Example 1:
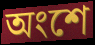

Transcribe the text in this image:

অংশে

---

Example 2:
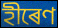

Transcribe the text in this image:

হীৰেণ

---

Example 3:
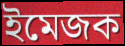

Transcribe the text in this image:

ইমেজক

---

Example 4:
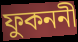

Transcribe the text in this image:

ফুকননী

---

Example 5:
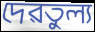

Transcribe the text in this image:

দেৱতুল্য